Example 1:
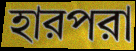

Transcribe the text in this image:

হারপরা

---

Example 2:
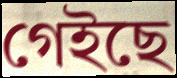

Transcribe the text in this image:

গেইছে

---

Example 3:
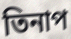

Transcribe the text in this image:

তিনাপ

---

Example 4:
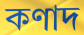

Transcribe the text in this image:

কণাদ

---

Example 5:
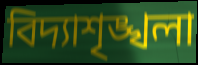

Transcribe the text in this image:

বিদ্যাশৃঙ্খলা